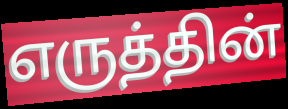
எருத்தின்